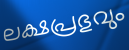
ലക്ഷപ്രഭുവും